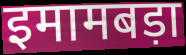
इमामबड़ा